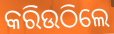
କରିଉଠିଲେ